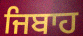
ਜਿਬਾਹ